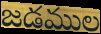
జడముల